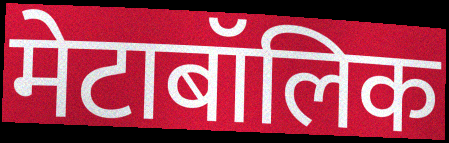
मेटाबॉलिक